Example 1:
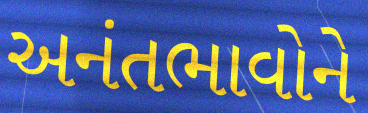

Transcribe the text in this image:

અનંતભાવોને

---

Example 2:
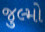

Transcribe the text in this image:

જુલ્મો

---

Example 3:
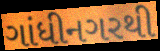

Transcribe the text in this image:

ગાંધીનગરથી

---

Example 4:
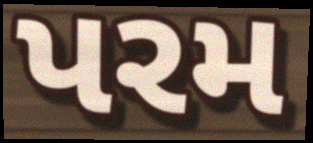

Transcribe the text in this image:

પરમ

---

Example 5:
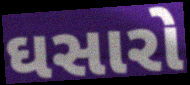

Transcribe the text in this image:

ઘસારો